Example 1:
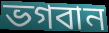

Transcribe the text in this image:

ভগবান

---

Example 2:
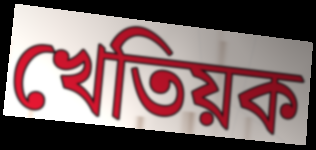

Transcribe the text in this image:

খেতিয়ক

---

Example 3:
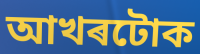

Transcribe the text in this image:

আখৰটোক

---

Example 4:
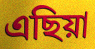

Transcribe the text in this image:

এছিয়া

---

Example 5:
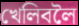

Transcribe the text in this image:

খেলিবলৈ